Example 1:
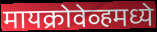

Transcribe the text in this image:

मायक्रोवेव्हमध्ये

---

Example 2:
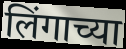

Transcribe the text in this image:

लिंगाच्या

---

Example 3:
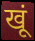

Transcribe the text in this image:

खूं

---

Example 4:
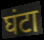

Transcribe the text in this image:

घंटा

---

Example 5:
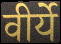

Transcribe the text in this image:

वीर्ये